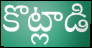
కొట్లాడి